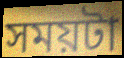
সময়টা